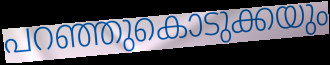
പറഞ്ഞുകൊടുക്കയും